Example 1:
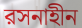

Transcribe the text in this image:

রসনাহীন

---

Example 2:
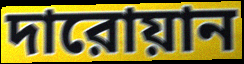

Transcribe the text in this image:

দারোয়ান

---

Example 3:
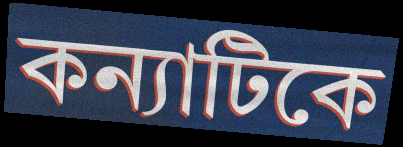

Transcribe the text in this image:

কন্যাটিকে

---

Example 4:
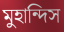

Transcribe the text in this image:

মুহান্দিস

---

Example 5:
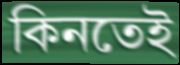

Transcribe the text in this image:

কিনতেই